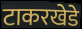
टाकरखेडे